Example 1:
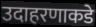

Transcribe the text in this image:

उदाहरणाकडे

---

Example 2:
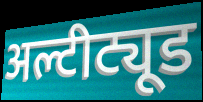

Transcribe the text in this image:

अल्टीट्यूड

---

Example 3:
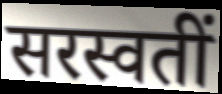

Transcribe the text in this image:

सरस्वतीं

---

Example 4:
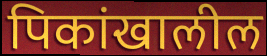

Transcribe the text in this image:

पिकांखालील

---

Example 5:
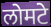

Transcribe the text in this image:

लोमटे